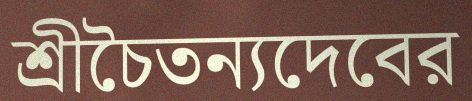
শ্রীচৈতন্যদেবের